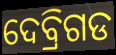
ଦେବ୍ରିଗଡ